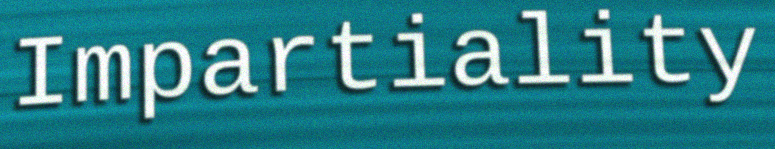
Impartiality